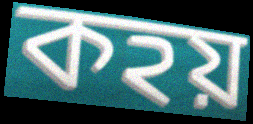
কহয়